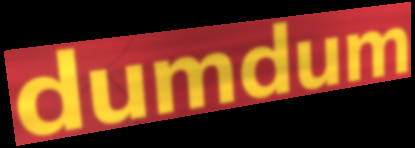
dumdum